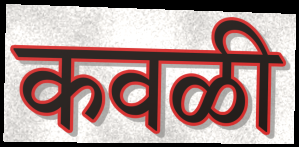
कवळी